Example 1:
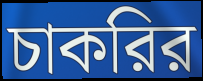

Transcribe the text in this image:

চাকরির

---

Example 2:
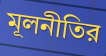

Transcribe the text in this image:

মূলনীতির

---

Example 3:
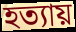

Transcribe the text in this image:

হত্যায়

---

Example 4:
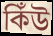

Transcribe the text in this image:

কিঁউ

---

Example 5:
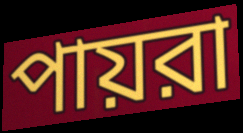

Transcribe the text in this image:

পায়রা